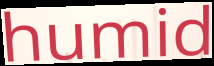
humid